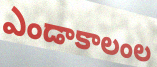
ఎండాకాలంల